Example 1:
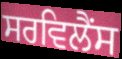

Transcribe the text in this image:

ਸਰਵਿਲੈਂਸ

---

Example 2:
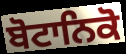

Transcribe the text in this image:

ਬੋਟਾਨਿਕੋ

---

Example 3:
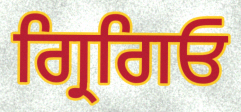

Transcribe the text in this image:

ਗ੍ਰਿਗਿਓ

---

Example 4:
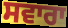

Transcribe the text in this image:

ਸਵਾਰਾ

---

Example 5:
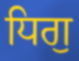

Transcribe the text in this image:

ਧਿਗੁ